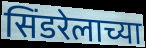
सिंडरेलाच्या